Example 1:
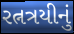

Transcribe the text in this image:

રત્નત્રયીનું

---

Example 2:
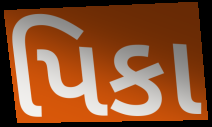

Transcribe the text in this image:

પિકા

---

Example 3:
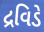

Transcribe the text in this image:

દ્રવિડે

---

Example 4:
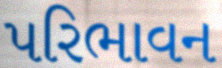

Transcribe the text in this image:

પરિભાવન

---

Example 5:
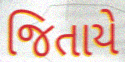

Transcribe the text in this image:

જિતાયે